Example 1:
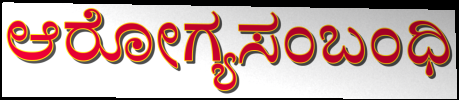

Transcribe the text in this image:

ಆರೋಗ್ಯಸಂಬಂಧಿ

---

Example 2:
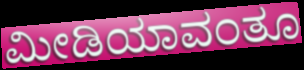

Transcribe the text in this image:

ಮೀಡಿಯಾವಂತೂ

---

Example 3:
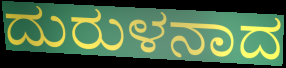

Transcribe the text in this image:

ದುರುಳನಾದ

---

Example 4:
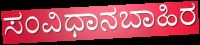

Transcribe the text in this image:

ಸಂವಿಧಾನಬಾಹಿರ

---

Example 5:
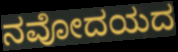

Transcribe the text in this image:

ನವೋದಯದ